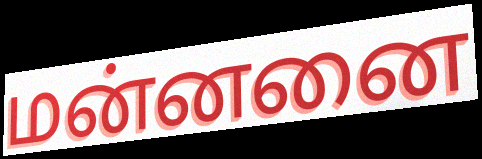
மன்னனை